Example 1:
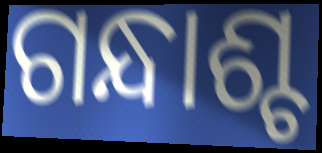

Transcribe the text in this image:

ଗନ୍ଧାଶ୍ଚ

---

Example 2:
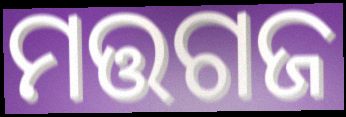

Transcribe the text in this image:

ମତ୍ତଗଜ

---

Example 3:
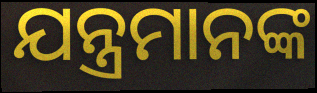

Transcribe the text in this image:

ଯନ୍ତ୍ରମାନଙ୍କ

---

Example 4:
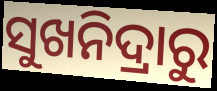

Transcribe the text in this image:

ସୁଖନିଦ୍ରାରୁ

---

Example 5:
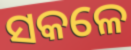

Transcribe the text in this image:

ସକଳେ